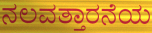
ನಲವತ್ತಾರನೆಯ